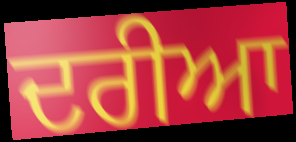
ਦਰੀਆ